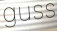
guss